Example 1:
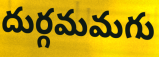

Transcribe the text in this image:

దుర్గమమగు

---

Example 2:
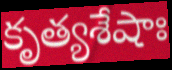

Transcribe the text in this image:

కృత్యశేషాః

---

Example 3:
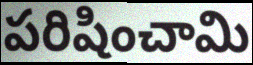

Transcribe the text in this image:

పరిషించామి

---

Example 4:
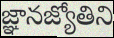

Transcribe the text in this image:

జ్ఞానజ్యోతిని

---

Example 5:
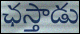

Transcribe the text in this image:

ఛస్తాడు